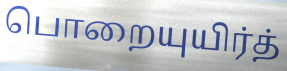
பொறையுயிர்த்